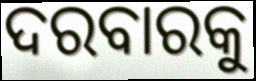
ଦରବାରକୁ